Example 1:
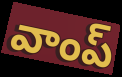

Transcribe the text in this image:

వాంప్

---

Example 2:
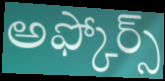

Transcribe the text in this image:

అఫ్కోర్స్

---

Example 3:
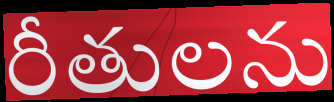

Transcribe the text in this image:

రీతులను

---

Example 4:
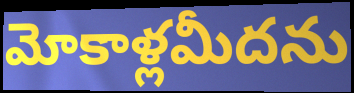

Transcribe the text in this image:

మోకాళ్లమీదను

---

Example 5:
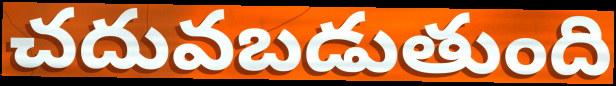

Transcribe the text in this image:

చదువబడుతుంది